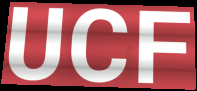
UCF